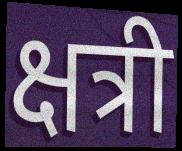
क्षत्री